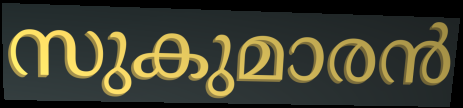
സുകുമാരൻ